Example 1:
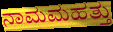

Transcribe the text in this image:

ನಾಮಮಹತ್ತು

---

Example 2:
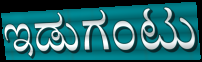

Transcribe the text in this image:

ಇಡುಗಂಟು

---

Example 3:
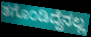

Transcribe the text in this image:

ತಗೊಂಡಿದ್ದೆನಲ್ಲ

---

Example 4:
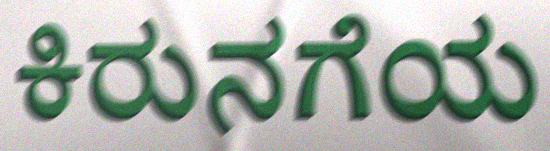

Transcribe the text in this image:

ಕಿರುನಗೆಯ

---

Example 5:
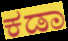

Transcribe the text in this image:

ಕಡಾ